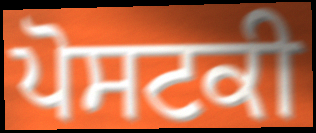
ਪੋਸਟਕੀ